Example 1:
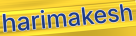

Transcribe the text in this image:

harimakesh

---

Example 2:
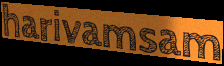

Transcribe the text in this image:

harivamsam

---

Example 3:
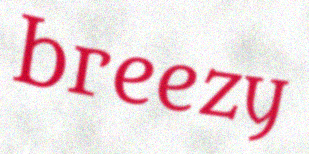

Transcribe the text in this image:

breezy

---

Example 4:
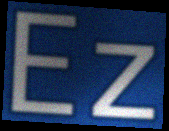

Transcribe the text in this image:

Ez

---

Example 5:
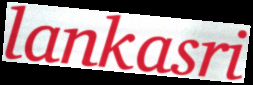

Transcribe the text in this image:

lankasri